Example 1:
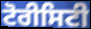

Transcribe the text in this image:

ਟੋਰੀਸਿਟੀ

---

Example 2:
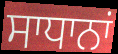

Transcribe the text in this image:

ਸਾਧਾਨਾਂ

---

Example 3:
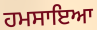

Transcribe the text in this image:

ਹਮਸਾਇਆ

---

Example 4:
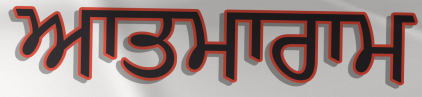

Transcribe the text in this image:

ਆਤਮਾਰਾਮ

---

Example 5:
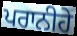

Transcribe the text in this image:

ਪਰਾਨੀਹੇ